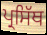
ਪ੍ਰਸਿੱਥ